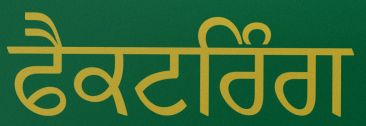
ਫੈਕਟਰਿੰਗ